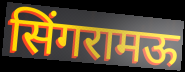
सिंगरामऊ